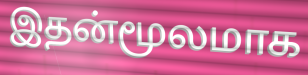
இதன்மூலமாக